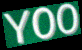
YOO